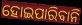
ହୋଇପାରିବାନି